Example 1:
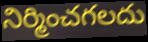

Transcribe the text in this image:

నిర్మించగలదు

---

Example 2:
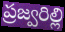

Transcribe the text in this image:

ప్రజ్వరిల్లి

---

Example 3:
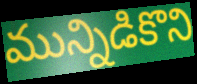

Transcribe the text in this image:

మున్నిడికొని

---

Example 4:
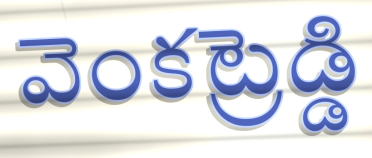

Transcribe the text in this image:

వెంకట్రెడ్డి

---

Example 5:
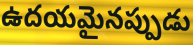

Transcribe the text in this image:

ఉదయమైనప్పుడు